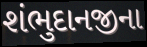
શંભુદાનજીના